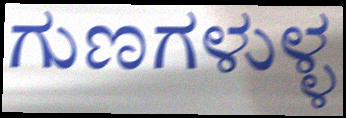
ಗುಣಗಳುಳ್ಳ